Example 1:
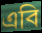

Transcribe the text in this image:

এবি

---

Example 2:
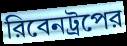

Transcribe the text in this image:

রিবেনট্রপের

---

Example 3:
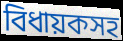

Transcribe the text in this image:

বিধায়কসহ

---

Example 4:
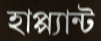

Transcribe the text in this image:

হাপ্প্যান্ট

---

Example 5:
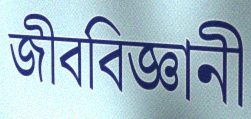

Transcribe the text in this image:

জীববিজ্ঞানী